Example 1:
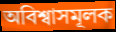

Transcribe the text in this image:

অবিশ্বাসমূলক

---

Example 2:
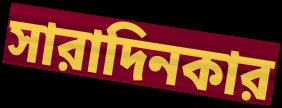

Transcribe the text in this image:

সারাদিনকার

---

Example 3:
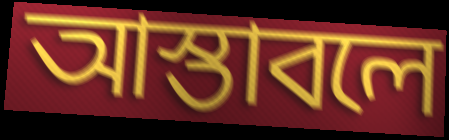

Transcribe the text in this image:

আস্তাবলে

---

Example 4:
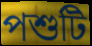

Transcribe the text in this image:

পশুটি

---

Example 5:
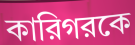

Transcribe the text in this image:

কারিগরকে